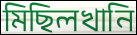
মিছিলখানি